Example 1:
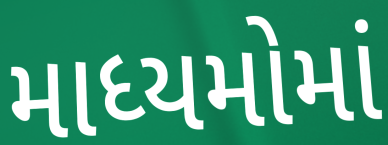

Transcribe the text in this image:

માધ્યમોમાં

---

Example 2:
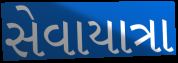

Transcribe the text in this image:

સેવાયાત્રા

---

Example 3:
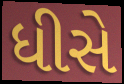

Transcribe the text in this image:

ધીસે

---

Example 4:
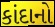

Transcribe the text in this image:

કાંદાનો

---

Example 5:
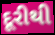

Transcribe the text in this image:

દૂરીથી